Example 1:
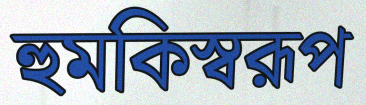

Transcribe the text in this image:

হুমকিস্বরূপ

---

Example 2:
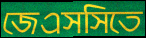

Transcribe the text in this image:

জেএসসিতে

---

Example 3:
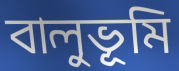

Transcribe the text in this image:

বালুভূমি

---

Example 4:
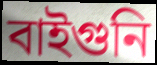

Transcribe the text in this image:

বাইগুনি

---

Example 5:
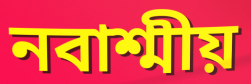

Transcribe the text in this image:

নবাশ্মীয়